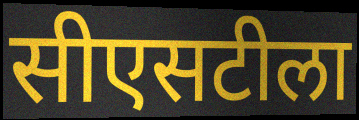
सीएसटीला